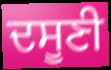
ਦਸੂਣੀ